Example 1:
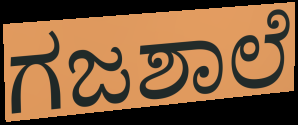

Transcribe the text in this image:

ಗಜಶಾಲೆ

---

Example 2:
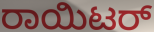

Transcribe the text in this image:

ರಾಯಿಟರ್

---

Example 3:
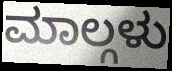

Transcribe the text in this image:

ಮಾಲ್ಗಳು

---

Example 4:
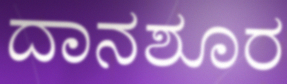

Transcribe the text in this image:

ದಾನಶೂರ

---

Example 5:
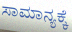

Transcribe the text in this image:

ಸಾಮಾನ್ಯಕ್ಕೆ